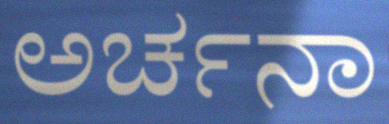
ಅರ್ಚನಾ